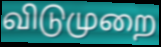
விடுமுறை